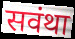
सवंथा